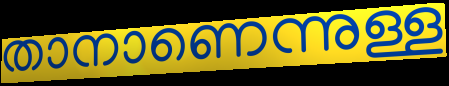
താനാണെന്നുള്ള